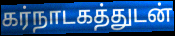
கர்நாடகத்துடன்